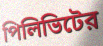
পিলিভিটের